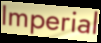
Imperial